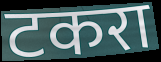
टकरा